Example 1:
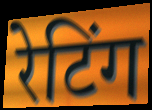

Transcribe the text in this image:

रेटिंग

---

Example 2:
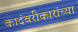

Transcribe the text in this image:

कादंबरीकारांच्या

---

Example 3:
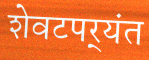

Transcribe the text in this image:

शेवटपर्यंत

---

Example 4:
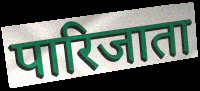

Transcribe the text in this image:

पारिजाता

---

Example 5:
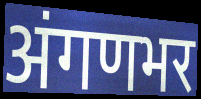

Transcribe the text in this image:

अंगणभर